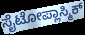
ಸೈಟೋಪ್ಲಾಸ್ಮಿಕ್